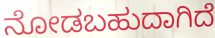
ನೋಡಬಹುದಾಗಿದೆ